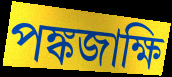
পঙ্কজাক্ষি